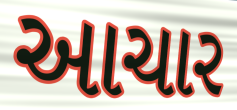
આચાર